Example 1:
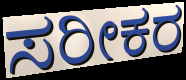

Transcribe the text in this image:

ಸರೀಕರ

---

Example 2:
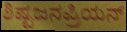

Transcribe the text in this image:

ಶಿಷ್ಟಜನಪ್ರಿಯನ್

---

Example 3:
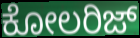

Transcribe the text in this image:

ಕೋಲರಿಜ್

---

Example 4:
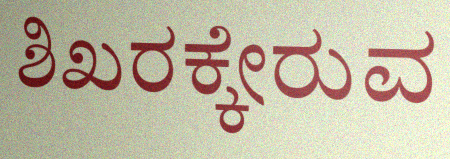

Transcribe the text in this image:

ಶಿಖರಕ್ಕೇರುವ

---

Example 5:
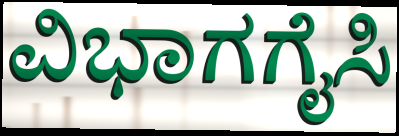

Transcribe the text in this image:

ವಿಭಾಗಗೈಸಿ